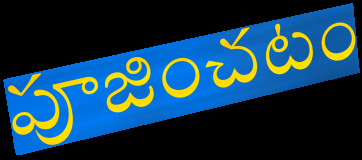
పూజించటం